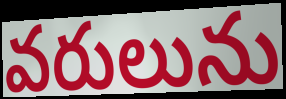
వరులును